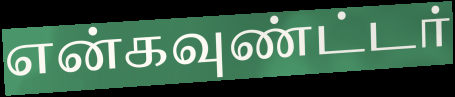
என்கவுண்ட்டர்